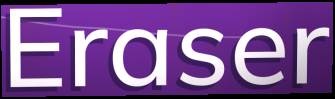
Eraser